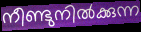
നീണ്ടുനിൽക്കുന്ന